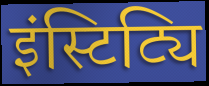
इंस्टिट्यि